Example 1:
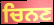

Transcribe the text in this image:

ਚਿਨਣ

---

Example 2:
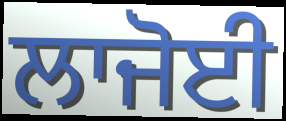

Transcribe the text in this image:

ਲਾਜੋਈ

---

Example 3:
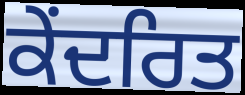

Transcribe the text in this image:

ਕੇਂਦਰਿਤ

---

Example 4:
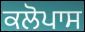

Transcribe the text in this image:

ਕਲੋਪਾਸ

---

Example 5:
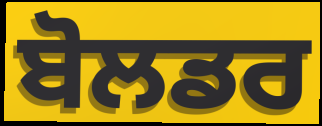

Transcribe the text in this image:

ਬੋਲਡਰ